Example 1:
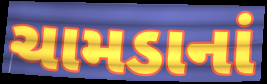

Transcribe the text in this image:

ચામડાનાં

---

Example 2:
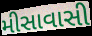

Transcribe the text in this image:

મીસાવાસી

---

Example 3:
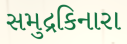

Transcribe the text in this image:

સમુદ્રકિનારા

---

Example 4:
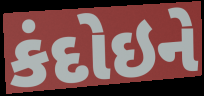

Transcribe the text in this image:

કંદોઇને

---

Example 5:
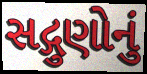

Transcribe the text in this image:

સદ્ગુણોનું